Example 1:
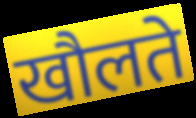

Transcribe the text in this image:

खौलते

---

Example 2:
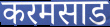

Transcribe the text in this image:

करमसाड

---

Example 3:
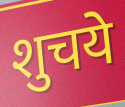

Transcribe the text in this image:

शुचये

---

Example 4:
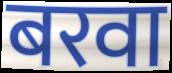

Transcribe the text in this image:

बरवा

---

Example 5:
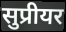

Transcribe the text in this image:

सुप्रीयर